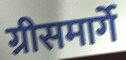
ग्रीसमार्गे